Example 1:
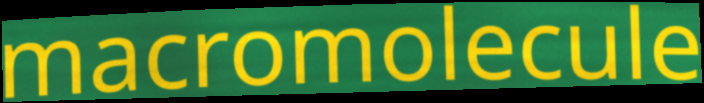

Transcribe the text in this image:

macromolecule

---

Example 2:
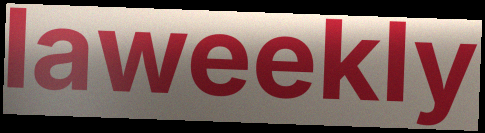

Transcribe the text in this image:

laweekly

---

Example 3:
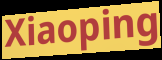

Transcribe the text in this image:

Xiaoping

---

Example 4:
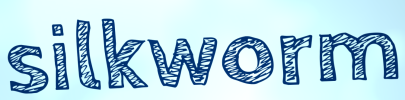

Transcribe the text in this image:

silkworm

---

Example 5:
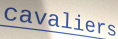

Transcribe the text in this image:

cavaliers